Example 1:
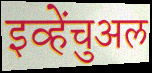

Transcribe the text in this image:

इव्हेंचुअल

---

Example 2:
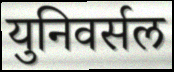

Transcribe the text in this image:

युनिवर्सल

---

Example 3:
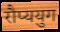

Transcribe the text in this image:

रौप्ययुग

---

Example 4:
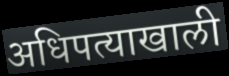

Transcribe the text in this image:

अधिपत्‍याखाली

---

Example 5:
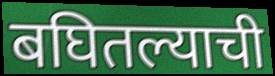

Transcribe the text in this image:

बघितल्याची